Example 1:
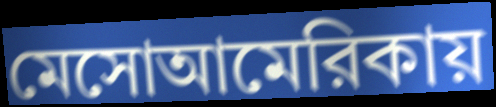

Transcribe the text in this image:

মেসোআমেরিকায়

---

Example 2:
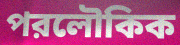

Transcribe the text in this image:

পরলৌকিক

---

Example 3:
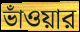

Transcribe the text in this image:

ভাঁওয়ার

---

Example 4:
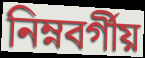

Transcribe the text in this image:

নিম্নবর্গীয়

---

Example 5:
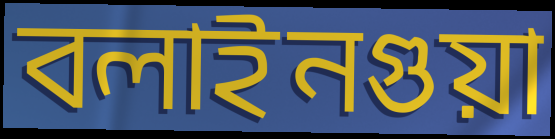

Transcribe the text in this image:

বলাইনগুয়া